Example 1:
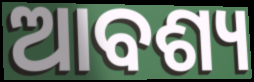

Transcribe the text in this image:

ଆବଶ୍ୟ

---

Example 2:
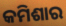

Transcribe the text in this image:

କମିଶାର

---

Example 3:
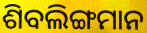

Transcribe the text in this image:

ଶିବଲିଙ୍ଗମାନ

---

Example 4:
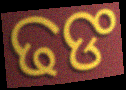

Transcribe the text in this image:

ଢଙ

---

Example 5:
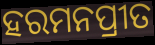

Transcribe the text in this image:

ହରମନପ୍ରୀତ